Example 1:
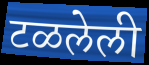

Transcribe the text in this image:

टळलेली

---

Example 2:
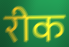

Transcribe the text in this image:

रीक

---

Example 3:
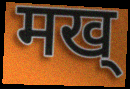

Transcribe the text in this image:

मख्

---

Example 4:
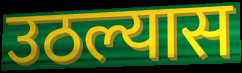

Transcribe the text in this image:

उठल्यास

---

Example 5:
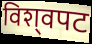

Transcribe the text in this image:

विश्वपट